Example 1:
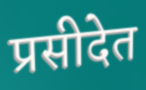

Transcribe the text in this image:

प्रसीदेत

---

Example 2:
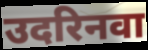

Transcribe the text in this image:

उदरिनवा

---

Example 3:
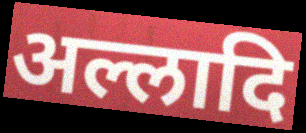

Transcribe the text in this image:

अल्लादि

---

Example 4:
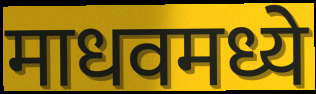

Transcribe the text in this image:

माधवमध्ये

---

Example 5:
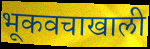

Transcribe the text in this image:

भूकवचाखाली